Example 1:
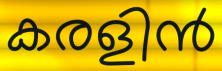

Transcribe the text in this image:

കരളിൻ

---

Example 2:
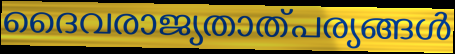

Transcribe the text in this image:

ദൈവരാജ്യതാത്പര്യങ്ങൾ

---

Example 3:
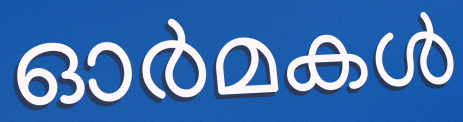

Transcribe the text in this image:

ഓർമകൾ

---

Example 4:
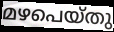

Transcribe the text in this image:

മഴപെയ്തു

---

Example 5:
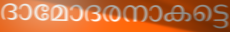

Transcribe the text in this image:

ദാമോദരനാകട്ടെ